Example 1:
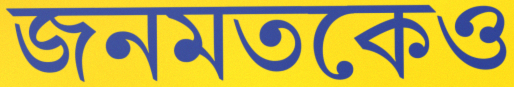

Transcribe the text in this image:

জনমতকেও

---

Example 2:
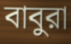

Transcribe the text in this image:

বাবুরা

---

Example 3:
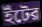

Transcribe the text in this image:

ইঁটের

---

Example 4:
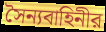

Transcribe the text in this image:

সৈন্যবাহিনীর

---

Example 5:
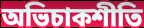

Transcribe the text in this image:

অভিচাকশীতি